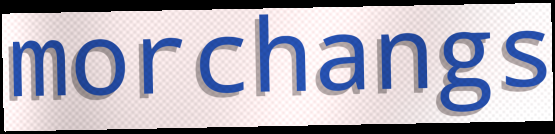
morchangs